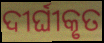
ଦୀର୍ଘୀକୃତ